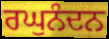
ਰਘੁਨੰਦਨ